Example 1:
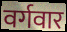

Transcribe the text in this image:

वर्गवार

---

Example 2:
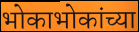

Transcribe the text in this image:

भोकाभोकांच्या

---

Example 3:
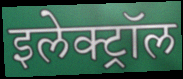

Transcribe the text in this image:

इलेक्ट्रॉल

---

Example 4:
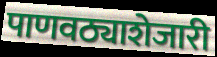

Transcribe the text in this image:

पाणवठ्याशेजारी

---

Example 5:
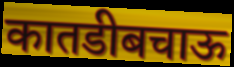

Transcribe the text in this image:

कातडीबचाऊ